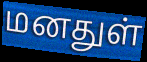
மனதுள்